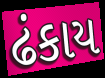
ઢંકાય